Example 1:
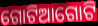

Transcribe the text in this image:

ଗୋଟିଆଗୋଟି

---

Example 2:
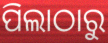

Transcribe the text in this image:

ପିଲାଠାରୁ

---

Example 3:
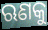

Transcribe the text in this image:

ଋଣକୁ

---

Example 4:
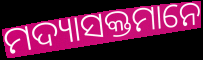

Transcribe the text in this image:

ମଦ୍ୟାସକ୍ତମାନେ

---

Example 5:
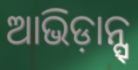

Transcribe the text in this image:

ଆଭିଡ଼ାନ୍ସ୍